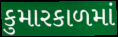
કુમારકાળમાં